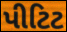
પીટિટ